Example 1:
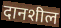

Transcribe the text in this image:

दानशील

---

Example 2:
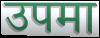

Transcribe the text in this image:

उपमा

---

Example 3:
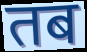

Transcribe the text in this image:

तब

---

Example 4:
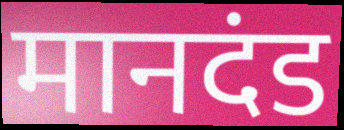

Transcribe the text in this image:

मानदंड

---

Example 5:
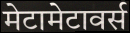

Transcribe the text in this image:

मेटामेटावर्स